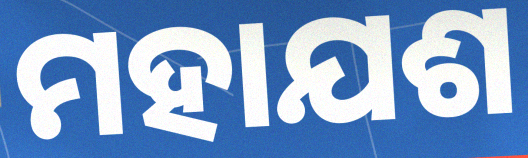
ମହାଯଶ